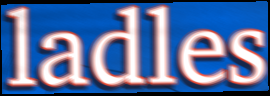
ladles